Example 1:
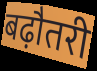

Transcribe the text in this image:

बढ़ौतरी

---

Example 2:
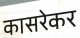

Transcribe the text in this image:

कासरेकर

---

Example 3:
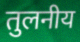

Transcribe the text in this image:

तुलनीय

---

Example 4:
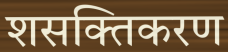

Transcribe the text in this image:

शसक्तिकरण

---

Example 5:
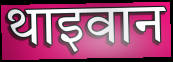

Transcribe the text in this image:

थाइवान